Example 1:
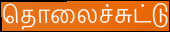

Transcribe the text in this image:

தொலைச்சுட்டு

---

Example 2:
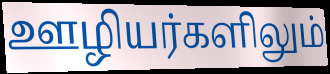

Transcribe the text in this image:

ஊழியர்களிலும்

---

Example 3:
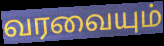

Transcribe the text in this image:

வரவையும்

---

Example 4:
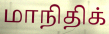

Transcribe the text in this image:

மாநிதிக்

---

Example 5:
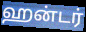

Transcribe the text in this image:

ஹன்டர்